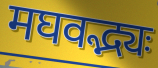
मघवद्भ्यः